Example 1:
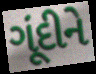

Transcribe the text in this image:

ગૂંદીને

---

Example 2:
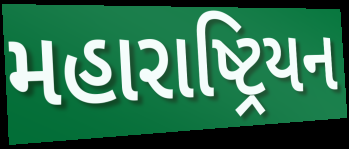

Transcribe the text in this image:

મહારાષ્ટ્રિયન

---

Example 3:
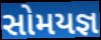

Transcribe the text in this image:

સોમયજ્ઞ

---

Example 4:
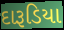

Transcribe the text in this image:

દારૂડિયા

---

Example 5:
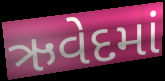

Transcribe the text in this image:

ઋવેદમાં